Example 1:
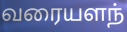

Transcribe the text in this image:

வரையளந்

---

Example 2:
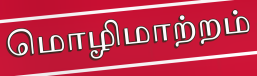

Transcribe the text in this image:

மொழிமாற்றம்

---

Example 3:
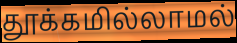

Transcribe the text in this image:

தூக்கமில்லாமல்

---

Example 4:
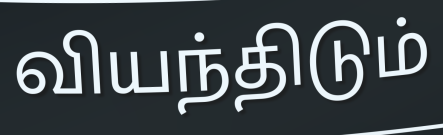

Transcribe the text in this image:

வியந்திடும்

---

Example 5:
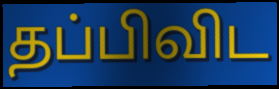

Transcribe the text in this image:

தப்பிவிட